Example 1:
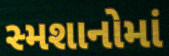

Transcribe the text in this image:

સ્મશાનોમાં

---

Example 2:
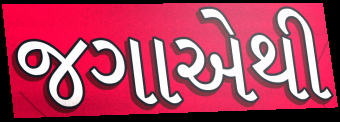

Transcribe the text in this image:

જગાએથી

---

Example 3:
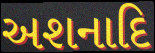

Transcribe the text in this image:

અશનાદિ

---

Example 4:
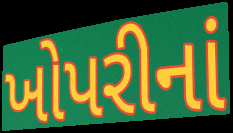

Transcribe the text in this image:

ખોપરીનાં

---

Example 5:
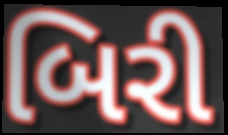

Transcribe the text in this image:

બિરી